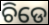
ଚିଡେ